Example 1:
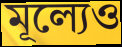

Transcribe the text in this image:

মূল্যেও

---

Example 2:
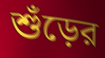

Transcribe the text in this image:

শুঁড়ের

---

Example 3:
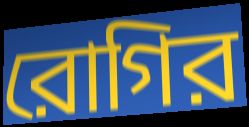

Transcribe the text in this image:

রোগির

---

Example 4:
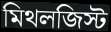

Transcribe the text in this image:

মিথলজিস্ট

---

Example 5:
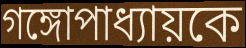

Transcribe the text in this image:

গঙ্গোপাধ্যায়কে